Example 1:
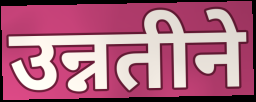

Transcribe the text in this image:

उन्नतीने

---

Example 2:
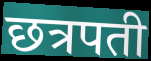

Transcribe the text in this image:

छत्रपती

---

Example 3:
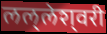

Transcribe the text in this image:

लल्लेश्वरी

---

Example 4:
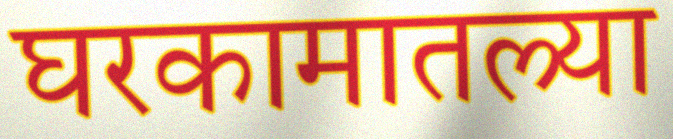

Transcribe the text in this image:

घरकामातल्या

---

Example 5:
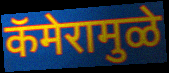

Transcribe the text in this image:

कॅमेरामुळे